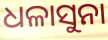
ଧଳାସୁନା